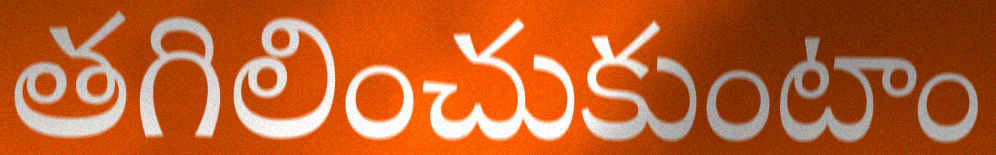
తగిలించుకుంటాం